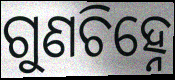
ଗୁଣଚିହ୍ନେ